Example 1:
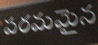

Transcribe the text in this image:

పరమమైన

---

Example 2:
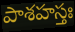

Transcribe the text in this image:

పాశహస్తః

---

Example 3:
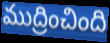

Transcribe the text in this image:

ముద్రించింది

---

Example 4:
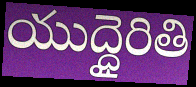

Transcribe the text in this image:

యుద్ధైరితి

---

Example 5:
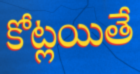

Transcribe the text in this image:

కోట్లయితే